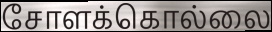
சோளக்கொல்லை